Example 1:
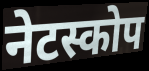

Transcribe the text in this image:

नेटस्कोप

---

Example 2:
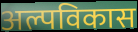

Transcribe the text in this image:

अल्पविकास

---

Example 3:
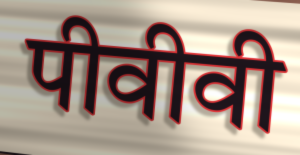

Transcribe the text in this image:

पीवीवी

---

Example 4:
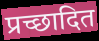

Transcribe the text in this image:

प्रच्छादित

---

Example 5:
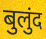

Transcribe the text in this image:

बुलुंद